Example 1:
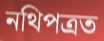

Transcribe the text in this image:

নথিপত্ৰত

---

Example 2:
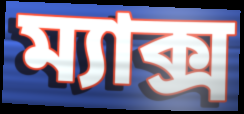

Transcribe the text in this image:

ম্যাক্স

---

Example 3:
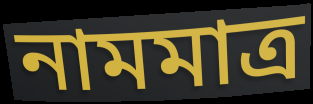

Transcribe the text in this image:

নামমাত্ৰ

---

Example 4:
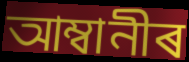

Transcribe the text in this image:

আম্বানীৰ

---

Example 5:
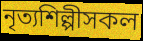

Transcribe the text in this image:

নৃত্যশিল্পীসকল